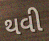
થવી